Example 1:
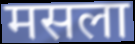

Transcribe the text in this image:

मसला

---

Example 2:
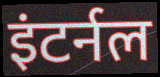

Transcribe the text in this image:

इंटर्नल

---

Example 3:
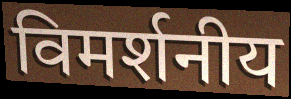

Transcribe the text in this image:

विमर्शनीय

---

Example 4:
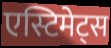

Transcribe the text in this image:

एस्टिमेट्स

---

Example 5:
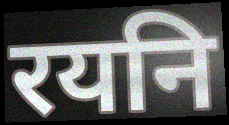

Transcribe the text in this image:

रयनि